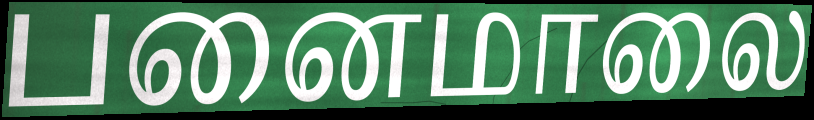
பனைமாலை